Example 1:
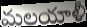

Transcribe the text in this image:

మలయాళీ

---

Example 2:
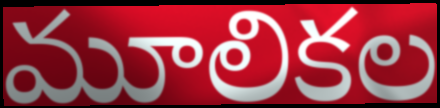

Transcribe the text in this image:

మూలికల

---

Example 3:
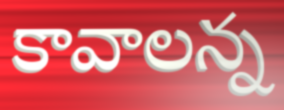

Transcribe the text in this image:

కావాలన్న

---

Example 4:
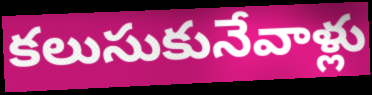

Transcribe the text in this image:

కలుసుకునేవాళ్లు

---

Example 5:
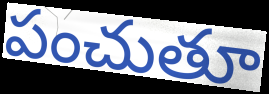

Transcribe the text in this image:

పంచుతూ